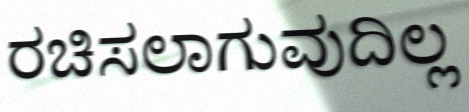
ರಚಿಸಲಾಗುವುದಿಲ್ಲ